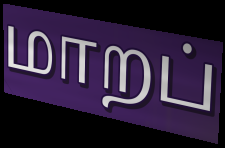
மாறப்